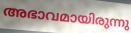
അഭാവമായിരുന്നു